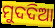
ମୁଦଦିଆ